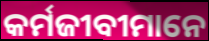
କର୍ମଜୀବୀମାନେ